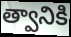
త్వానికి